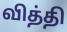
வித்தி